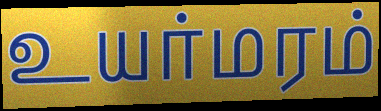
உயர்மரம்